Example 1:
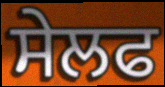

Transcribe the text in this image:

ਸੇਲਫ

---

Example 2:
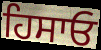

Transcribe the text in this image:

ਹਿਸਾਓ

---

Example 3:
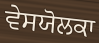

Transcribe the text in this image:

ਵੇਸਯੋਲਕਾ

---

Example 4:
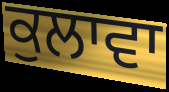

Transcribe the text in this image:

ਕੁਲਾਵਾ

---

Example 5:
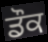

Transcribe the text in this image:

ਡੌਕ